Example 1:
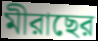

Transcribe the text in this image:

মীরাছের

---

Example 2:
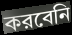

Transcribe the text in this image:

করবেনি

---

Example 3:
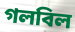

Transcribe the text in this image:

গলবিল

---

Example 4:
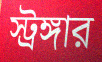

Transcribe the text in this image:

স্ট্রঙ্গার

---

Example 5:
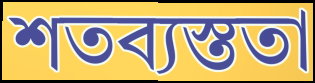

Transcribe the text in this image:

শতব্যস্ততা